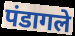
पंडागले